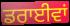
ਡਰਾਈਵਾਂ